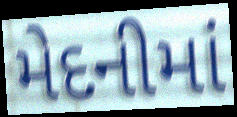
મેદનીમાં